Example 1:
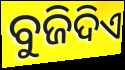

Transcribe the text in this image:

ବୁଜିଦିଏ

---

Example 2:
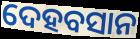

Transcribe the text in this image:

ଦେହବସାନ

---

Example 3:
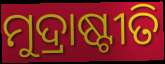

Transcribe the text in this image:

ମୁଦ୍ରାଷ୍ଟୀତି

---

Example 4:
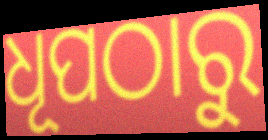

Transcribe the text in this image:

ଧୂପଠାରୁ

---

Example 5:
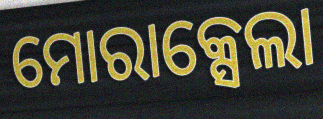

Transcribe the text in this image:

ମୋରାକ୍ସେଲା